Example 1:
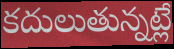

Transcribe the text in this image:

కదులుతున్నట్లే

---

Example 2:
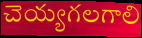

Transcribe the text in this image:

చెయ్యగలగాలి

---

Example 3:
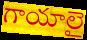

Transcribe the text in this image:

గాయాలై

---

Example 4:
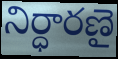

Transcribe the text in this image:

నిర్ధారణై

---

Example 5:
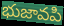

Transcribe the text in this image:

భుజావపి